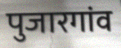
पुजारगांव